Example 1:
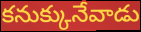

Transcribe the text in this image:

కనుక్కునేవాడు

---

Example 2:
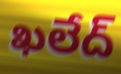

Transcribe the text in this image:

ఖలేద్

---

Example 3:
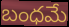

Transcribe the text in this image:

బంధమే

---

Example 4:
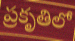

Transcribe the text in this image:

ప్రకృతిలో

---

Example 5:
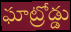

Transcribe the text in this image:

ఘాట్రోడ్డు